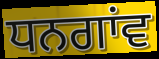
ਧਨਗਾਂਵ